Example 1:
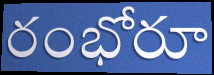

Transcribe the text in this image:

రంభోరూ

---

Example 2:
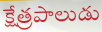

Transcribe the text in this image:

క్షేత్రపాలుడు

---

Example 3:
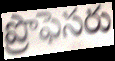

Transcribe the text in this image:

ప్రొఫెసరు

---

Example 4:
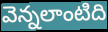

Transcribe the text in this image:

వెన్నలాంటిది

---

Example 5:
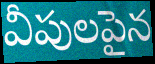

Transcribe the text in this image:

వీపులపైన